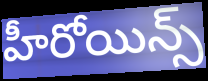
హీరోయిన్స్